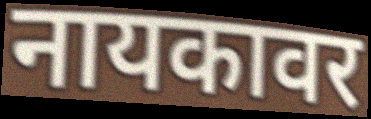
नायकावर